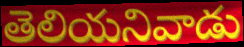
తెలియనివాడు